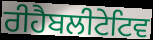
ਰੀਹੈਬਲੀਟੇਟਿਵ